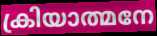
ക്രിയാത്മനേ